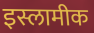
इस्लामीक